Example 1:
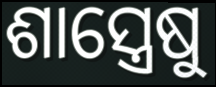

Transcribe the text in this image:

ଶାସ୍ତ୍ରେଷୁ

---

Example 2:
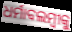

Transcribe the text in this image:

ଧର୍ମାବଲମ୍ବୀକୁ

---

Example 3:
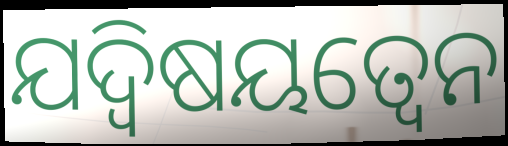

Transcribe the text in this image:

ଯଦ୍ଵିଷୟତ୍ଵେନ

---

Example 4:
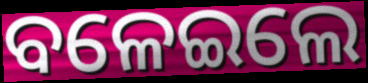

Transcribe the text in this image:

ବଳେଇଲେ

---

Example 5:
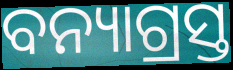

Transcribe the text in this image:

ବନ୍ୟାଗ୍ରସ୍ତ